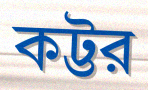
কট্টর